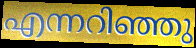
എന്നറിഞ്ഞു